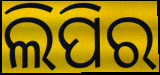
ଲିପିର